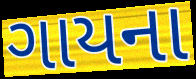
ગાયના